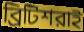
ব্রিটিশরাই